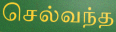
செல்வந்த